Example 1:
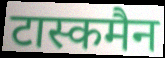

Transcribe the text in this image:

टास्कमैन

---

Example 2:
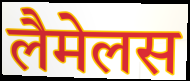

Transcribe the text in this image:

लैमेलस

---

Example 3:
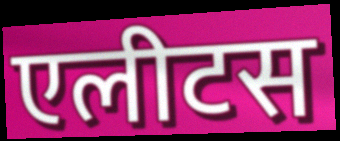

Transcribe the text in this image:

एलीटस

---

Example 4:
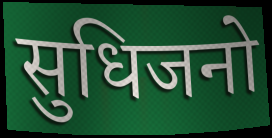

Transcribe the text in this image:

सुधिजनो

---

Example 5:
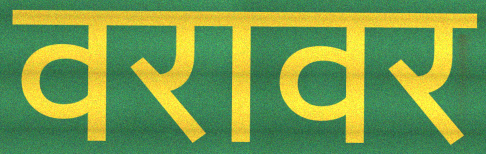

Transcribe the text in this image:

वरावर